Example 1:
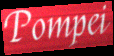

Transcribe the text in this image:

Pompei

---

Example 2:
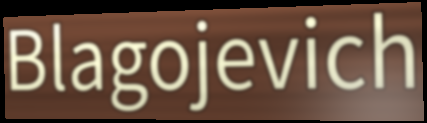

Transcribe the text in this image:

Blagojevich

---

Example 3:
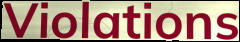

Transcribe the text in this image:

Violations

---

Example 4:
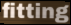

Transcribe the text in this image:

fitting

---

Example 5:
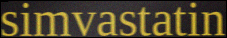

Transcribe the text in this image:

simvastatin